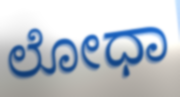
ಲೋಧಾ